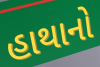
હાથાનો